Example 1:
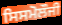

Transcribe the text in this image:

ਸਿਸਮੋਲੌਜੀ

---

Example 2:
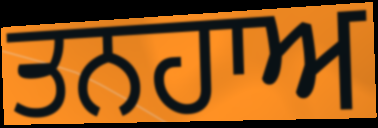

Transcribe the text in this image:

ਤਨਹਾਅ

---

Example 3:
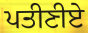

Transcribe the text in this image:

ਪਤੀਣੀਏ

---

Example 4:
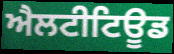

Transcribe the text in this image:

ਐਲਟੀਟਿਊਡ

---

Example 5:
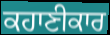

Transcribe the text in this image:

ਕਹਾਣੀਕਾਰ